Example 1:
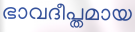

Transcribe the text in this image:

ഭാവദീപ്തമായ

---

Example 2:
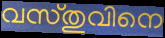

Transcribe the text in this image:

വസ്തുവിനെ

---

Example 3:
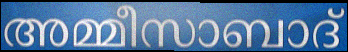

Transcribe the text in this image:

അമ്മീസാബാദ്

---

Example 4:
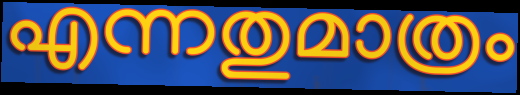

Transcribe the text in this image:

എന്നതുമാത്രം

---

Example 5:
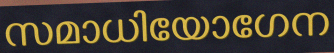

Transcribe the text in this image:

സമാധിയോഗേന